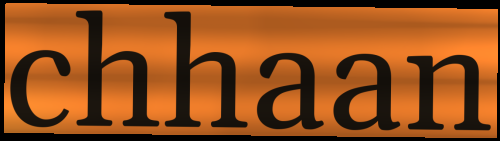
chhaan